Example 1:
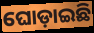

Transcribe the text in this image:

ଘୋଡ଼ାଇଛି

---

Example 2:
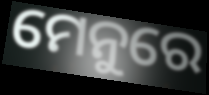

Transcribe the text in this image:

ମେନୁରେ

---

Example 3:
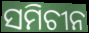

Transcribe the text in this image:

ସମିଚୀନ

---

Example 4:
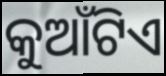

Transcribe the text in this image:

କୁଆଁଟିଏ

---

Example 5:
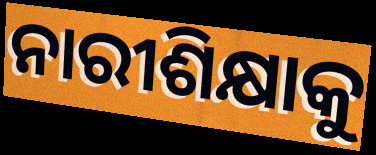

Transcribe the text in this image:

ନାରୀଶିକ୍ଷାକୁ